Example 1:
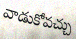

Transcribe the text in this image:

వాడుకోవచ్చు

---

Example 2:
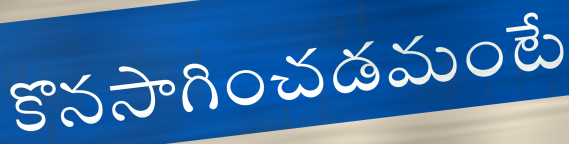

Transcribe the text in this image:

కొనసాగించడమంటే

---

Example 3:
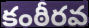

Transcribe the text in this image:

కంఠీరవ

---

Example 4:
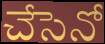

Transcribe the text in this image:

చేసెనో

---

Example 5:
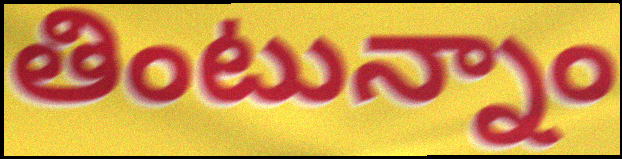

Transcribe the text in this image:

తింటున్నాం